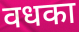
वधका